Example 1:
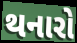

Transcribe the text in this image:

થનારો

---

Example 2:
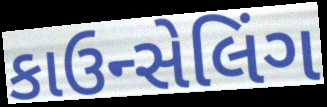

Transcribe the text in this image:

કાઉન્સેલિંગ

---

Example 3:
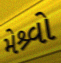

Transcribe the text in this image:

મેશ્ર્વો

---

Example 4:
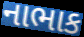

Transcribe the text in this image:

નાભાક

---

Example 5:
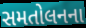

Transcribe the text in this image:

સમતોલનના